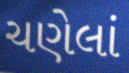
ચણેલાં